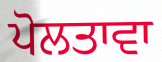
ਪੋਲਤਾਵਾ